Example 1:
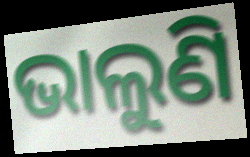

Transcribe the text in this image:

ଭାଲୁଣି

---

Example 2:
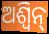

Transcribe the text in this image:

ଅଶ୍ବିନ୍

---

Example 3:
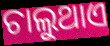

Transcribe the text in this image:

ଚାଲୁଥାଏ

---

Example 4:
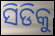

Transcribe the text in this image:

ସିଡିକୁ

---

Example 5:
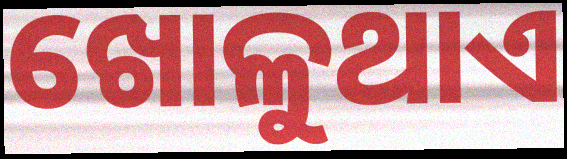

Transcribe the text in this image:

ଖୋଳୁଥାଏ